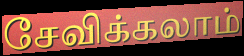
சேவிக்கலாம்